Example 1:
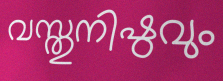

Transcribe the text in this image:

വസ്തുനിഷ്ഠവും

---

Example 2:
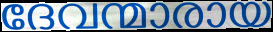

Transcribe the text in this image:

ദേവന്മാരായ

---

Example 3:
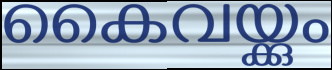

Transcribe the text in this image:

കൈവയ്ക്കും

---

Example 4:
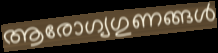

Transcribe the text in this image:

ആരോഗ്യഗുണങ്ങൾ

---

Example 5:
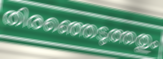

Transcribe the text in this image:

തിരഞ്ഞെടുത്തതും